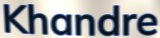
Khandre